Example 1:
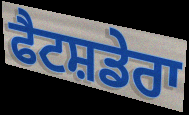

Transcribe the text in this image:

ਫੈਟਸ਼ਡੇਰਾ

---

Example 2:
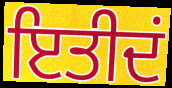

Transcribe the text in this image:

ਇਤੀਦਂ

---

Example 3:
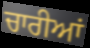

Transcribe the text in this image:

ਚਾਰੀਆਂ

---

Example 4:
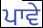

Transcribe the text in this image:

ਪਾਵੇ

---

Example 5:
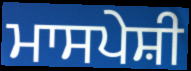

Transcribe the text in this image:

ਮਾਸਪੇਸ਼ੀ